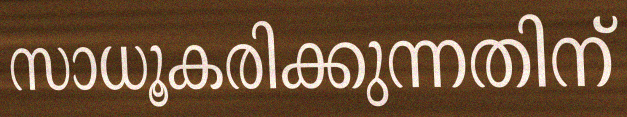
സാധൂകരിക്കുന്നതിന്